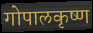
गोपालकृष्ण